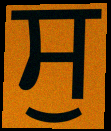
ਸੁ